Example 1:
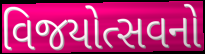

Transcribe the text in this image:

વિજયોત્સવનો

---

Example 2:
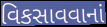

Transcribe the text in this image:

વિકસાવવાનાં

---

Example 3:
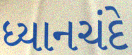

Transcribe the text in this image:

ધ્યાનચંદે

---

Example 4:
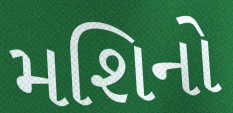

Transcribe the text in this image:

મશિનો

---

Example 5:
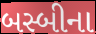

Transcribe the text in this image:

બસ્બીના